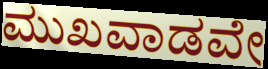
ಮುಖವಾಡವೇ